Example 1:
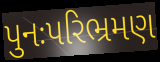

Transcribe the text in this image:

પુનઃપરિભ્રમણ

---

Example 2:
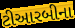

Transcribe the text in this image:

ટીઆરબીના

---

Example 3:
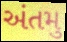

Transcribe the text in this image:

અંતમુ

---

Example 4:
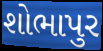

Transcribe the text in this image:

શોભાપુર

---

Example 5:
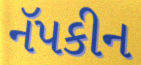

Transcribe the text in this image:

નૅપકીન